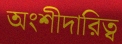
অংশীদারিত্ব